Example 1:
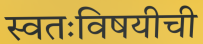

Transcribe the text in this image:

स्वतःविषयीची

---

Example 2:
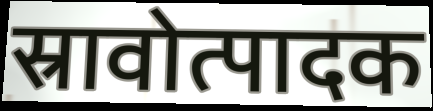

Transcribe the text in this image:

स्रावोत्पादक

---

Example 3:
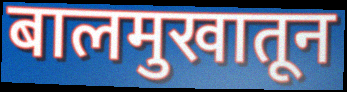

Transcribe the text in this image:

बालमुखातून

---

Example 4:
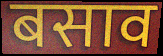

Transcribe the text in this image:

बसाव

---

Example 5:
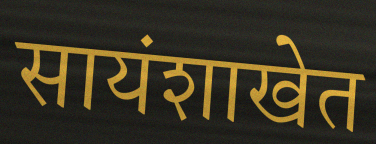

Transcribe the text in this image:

सायंशाखेत